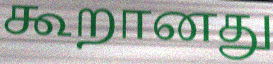
கூறானது